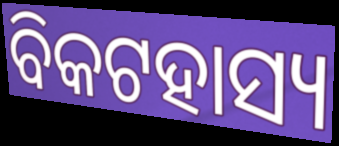
ବିକଟହାସ୍ୟ